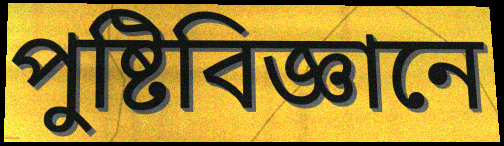
পুষ্টিবিজ্ঞানে